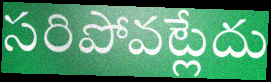
సరిపోవట్లేదు